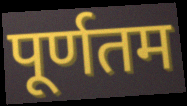
पूर्णतम